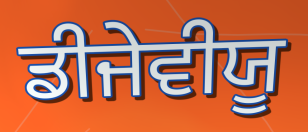
ਡੀਜੇਵੀਯੂ